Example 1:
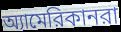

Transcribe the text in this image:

অ্যামেরিকানরা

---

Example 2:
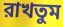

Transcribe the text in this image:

রাখতুম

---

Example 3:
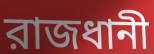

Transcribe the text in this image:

রাজধানী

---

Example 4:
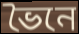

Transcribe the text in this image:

ভৈনে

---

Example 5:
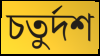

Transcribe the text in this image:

চতুর্দশ